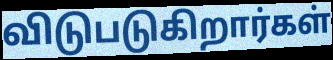
விடுபடுகிறார்கள்